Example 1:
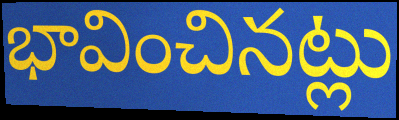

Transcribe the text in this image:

భావించినట్లు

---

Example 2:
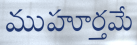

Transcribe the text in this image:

ముహూర్తమే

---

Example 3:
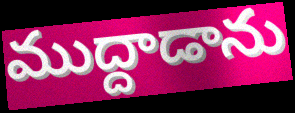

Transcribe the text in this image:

ముద్దాడాను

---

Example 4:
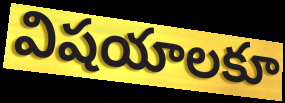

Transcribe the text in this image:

విషయాలకూ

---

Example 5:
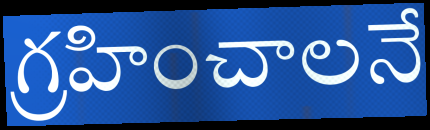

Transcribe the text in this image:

గ్రహించాలనే